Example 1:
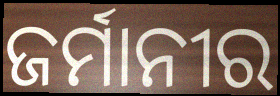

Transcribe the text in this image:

ଜର୍ମାନୀର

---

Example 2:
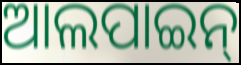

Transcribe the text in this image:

ଆଲପାଇନ୍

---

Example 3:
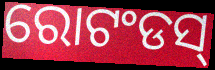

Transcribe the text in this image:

ରୋଟଂଡସ୍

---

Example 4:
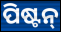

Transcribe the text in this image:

ପିଷ୍ଟନ୍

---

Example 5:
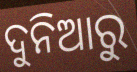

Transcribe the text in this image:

ଦୁନିଆରୁ